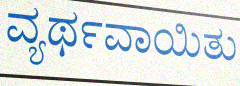
ವ್ಯರ್ಥವಾಯಿತು